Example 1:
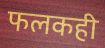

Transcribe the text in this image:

फलकही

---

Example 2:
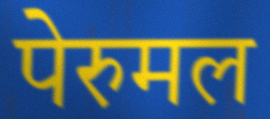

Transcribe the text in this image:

पेरुमल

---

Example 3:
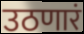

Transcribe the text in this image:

उठणारं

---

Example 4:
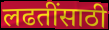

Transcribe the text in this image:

लढतींसाठी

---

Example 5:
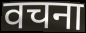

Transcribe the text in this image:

वचना